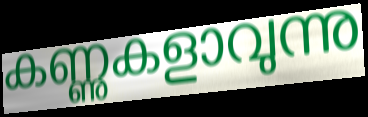
കണ്ണുകളാവുന്നു